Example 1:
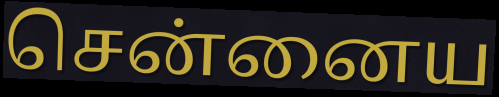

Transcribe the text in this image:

சென்னைய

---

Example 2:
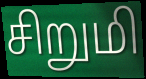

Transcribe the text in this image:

சிறுமி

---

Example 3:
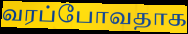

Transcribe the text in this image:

வரப்போவதாக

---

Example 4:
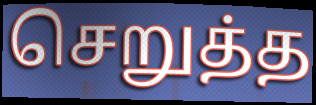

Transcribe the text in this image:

செறுத்த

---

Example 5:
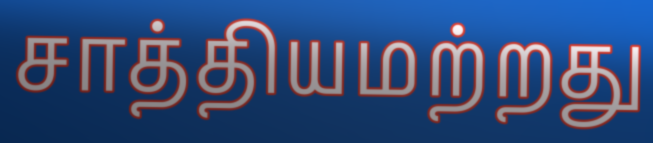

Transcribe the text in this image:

சாத்தியமற்றது